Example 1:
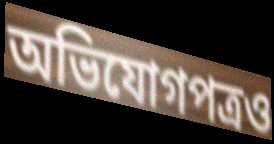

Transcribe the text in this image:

অভিযোগপত্রও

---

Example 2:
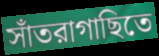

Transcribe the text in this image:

সাঁতরাগাছিতে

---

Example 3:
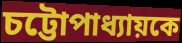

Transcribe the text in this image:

চট্টোপাধ্যায়কে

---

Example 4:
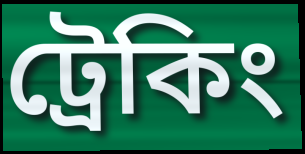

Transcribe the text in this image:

ট্রেকিং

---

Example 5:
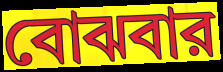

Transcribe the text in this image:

বোঝবার